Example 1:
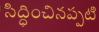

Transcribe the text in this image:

సిద్ధించినప్పటి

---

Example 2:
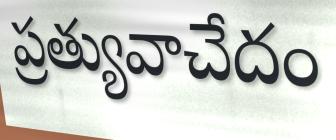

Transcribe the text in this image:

ప్రత్యువాచేదం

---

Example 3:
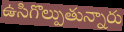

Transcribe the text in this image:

ఉసిగొల్పుతున్నారు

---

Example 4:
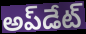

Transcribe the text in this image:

అప్‌డేట్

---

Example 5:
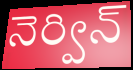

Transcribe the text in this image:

నెర్విన్